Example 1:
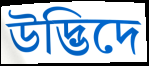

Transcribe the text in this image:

উদ্ভিদে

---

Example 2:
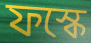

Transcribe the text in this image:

ফস্কে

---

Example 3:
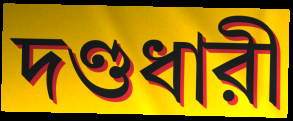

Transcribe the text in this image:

দণ্ডধারী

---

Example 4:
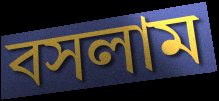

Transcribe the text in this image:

বসলাম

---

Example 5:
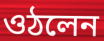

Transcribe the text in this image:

ওঠলেন